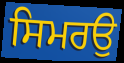
ਸਿਮਰਉ